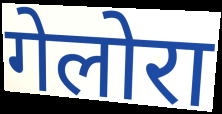
गेलोरा